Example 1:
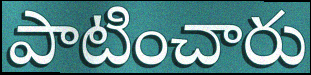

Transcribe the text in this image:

పాటించారు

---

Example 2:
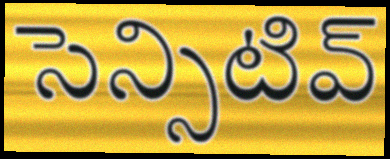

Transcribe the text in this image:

సెన్సిటివ్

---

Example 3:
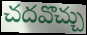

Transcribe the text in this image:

చదవొచ్చు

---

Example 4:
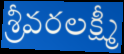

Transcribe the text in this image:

శ్రీవరలక్ష్మీ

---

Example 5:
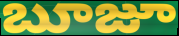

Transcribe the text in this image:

బూజూ